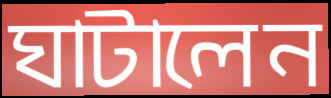
ঘাটালেন